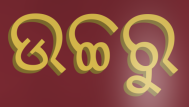
ଉଚ୍ଚରୁ